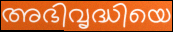
അഭിവൃദ്ധിയെ